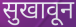
सुखावून